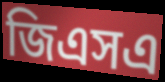
জিএসএ